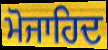
ਮੋਜਾਹਿਦ